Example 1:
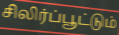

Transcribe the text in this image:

சிலிர்ப்பூட்டும்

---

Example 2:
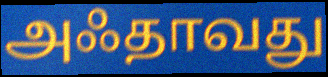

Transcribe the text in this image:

அஃதாவது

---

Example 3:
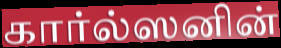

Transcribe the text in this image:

கார்ல்ஸனின்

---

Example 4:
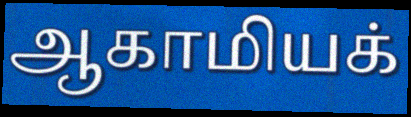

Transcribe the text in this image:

ஆகாமியக்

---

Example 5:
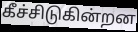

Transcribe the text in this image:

கீச்சிடுகின்றன